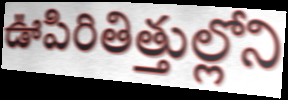
ఊపిరితిత్తుల్లోని